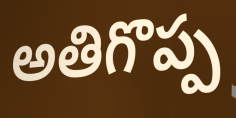
అతిగొప్ప